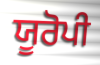
ਯੂਰੋਪੀ